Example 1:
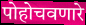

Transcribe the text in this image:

पोहोचवणारे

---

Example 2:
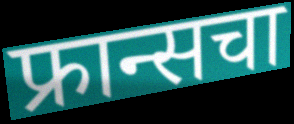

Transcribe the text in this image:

फ्रान्सचा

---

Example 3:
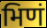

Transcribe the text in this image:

भिणं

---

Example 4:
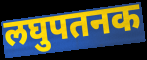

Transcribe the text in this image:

लघुपतनक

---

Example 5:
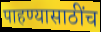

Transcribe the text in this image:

पाहण्यासाठींच